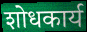
शोधकार्य